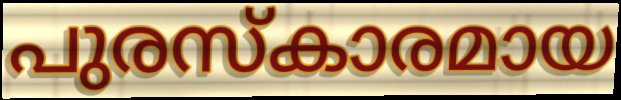
പുരസ്കാരമായ